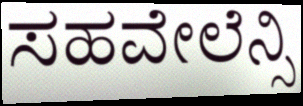
ಸಹವೇಲೆನ್ಸಿ